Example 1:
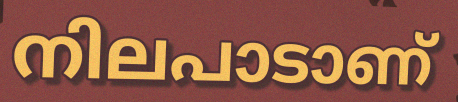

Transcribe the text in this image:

നിലപാടാണ്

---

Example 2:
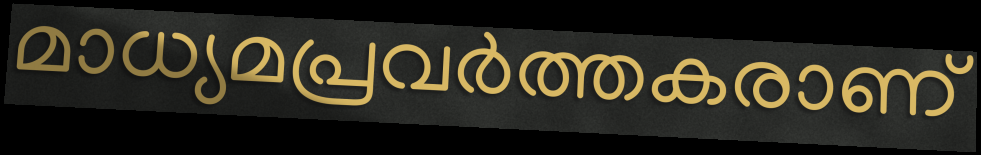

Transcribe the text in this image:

മാധ്യമപ്രവർത്തകരാണ്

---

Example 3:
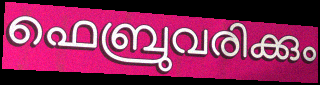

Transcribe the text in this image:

ഫെബ്രുവരിക്കും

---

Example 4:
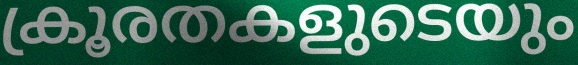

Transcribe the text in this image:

ക്രൂരതകളുടെയും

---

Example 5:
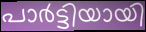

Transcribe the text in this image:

പാർട്ടിയായി